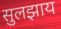
सुलझाय